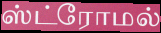
ஸ்ட்ரோமல்